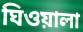
ঘিওয়ালা